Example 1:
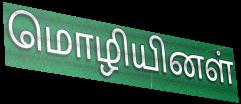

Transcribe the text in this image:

மொழியினள்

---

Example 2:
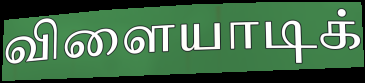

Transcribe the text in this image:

விளையாடிக்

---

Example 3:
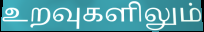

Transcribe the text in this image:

உறவுகளிலும்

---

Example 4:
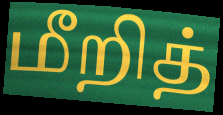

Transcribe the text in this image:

மீறித்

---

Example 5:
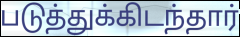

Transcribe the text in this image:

படுத்துக்கிடந்தார்